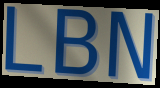
LBN